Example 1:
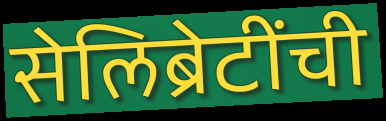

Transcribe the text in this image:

सेलिब्रेटींची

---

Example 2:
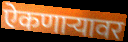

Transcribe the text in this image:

ऐकणाऱ्यावर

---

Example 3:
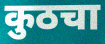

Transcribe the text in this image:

कुठचा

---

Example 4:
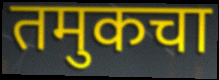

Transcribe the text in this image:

तमुकचा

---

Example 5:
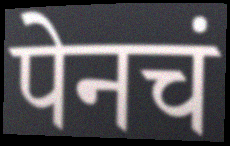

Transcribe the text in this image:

पेनचं